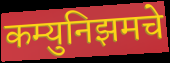
कम्युनिझमचे